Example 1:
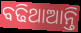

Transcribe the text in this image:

ବଢିଥାଆନ୍ତି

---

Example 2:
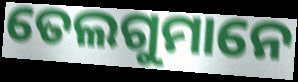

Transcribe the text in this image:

ତେଲଗୁମାନେ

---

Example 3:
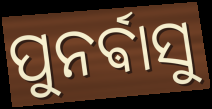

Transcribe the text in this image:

ପୁନର୍ଵାସୁ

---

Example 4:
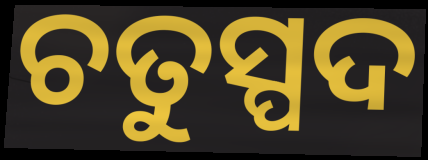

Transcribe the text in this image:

ଚତୁସ୍ପଦ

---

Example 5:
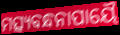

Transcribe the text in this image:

ମତ୍ସ୍ୟବନ୍ଧନାପାୟୈ